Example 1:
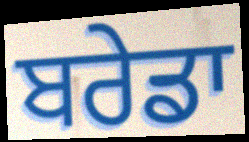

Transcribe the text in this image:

ਬਰੇਡਾ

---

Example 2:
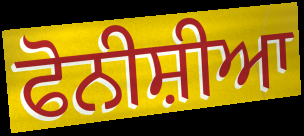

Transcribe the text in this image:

ਫੋਨੀਸ਼ੀਆ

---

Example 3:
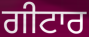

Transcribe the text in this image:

ਗੀਟਾਰ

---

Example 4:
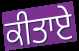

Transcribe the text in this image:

ਕੀਤਾਏ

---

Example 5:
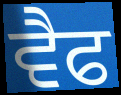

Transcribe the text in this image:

ਵੈਫ